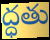
ద్ధతు